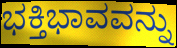
ಭಕ್ತಿಭಾವವನ್ನು